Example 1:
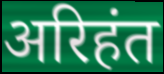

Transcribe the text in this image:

अरिहंत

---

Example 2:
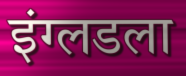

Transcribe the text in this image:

इंग्लडला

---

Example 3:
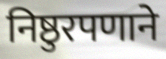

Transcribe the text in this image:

निष्ठुरपणाने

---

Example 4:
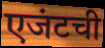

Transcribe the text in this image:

एजंटची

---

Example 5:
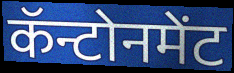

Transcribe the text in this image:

कॅन्टोनमेंट